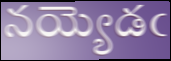
నయ్యెడఁ